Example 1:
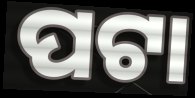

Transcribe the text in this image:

ପଟା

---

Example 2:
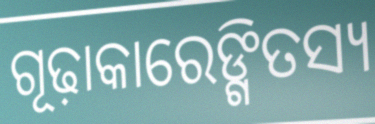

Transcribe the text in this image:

ଗୂଢ଼ାକାରେଙ୍ଗିତସ୍ୟ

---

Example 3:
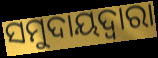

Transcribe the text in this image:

ସମୁଦାୟଦ୍ୱାରା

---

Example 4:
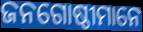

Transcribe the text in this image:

ଜନଗୋଷ୍ଠୀମାନେ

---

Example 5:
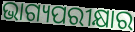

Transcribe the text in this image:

ଭାଗ୍ୟପରୀକ୍ଷାର